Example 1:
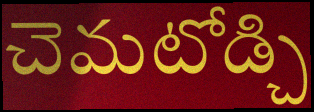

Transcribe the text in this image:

చెమటోడ్చి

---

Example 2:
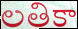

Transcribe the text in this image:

లతికా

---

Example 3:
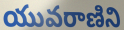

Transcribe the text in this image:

యువరాణిని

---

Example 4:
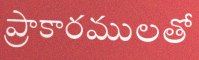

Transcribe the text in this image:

ప్రాకారములతో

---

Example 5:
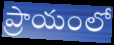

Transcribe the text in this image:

ప్రాయంలో